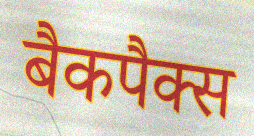
बैकपैक्स